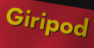
Giripod